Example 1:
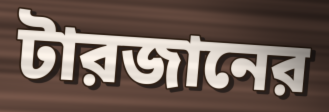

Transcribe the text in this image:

টারজানের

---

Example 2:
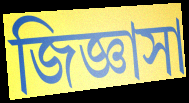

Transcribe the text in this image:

জিজ্ঞাসা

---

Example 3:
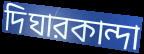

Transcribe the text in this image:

দিঘারকান্দা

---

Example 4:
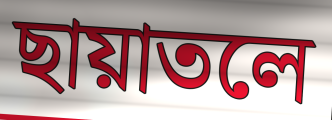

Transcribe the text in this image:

ছায়াতলে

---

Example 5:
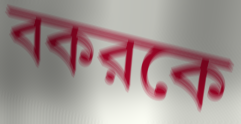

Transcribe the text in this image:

বকরকে